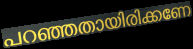
പറഞ്ഞതായിരിക്കണേ